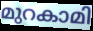
മുറകാമി